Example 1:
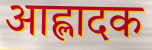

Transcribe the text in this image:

आह्लादक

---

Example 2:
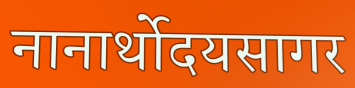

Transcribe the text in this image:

नानार्थोदयसागर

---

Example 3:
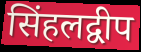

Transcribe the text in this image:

सिंहलद्वीप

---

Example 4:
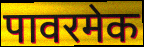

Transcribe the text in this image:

पावरमेक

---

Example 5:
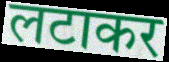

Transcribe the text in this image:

लटाकर